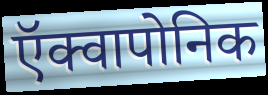
ऍक्वापोनिक